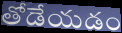
తోడేయడం